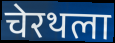
चेरथला